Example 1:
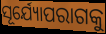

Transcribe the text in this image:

ସୂର୍ଯ୍ୟୋପରାଗକୁ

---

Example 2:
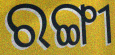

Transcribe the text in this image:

ରଙ୍ଗୀ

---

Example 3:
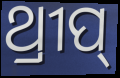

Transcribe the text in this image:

ଥ୍ରୀପ୍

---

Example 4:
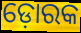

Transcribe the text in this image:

ଡ଼ୋରକ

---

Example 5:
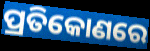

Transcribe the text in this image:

ପ୍ରତିକୋଣରେ